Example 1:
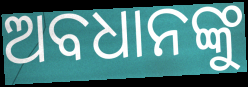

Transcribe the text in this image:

ଅବଧାନଙ୍କୁ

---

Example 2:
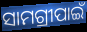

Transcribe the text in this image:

ସାମଗ୍ରୀପାଇଁ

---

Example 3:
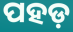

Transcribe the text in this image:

ପହଡ଼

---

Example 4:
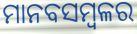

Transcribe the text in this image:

ମାନବସମ୍ବଳର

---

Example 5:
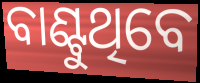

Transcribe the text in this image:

ବାଣ୍ଟୁଥିବେ